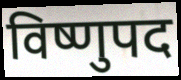
विष्णुपद